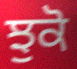
ਝੁਕੋ